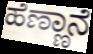
ಹೆಣ್ಣಾನೆ